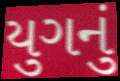
યુગનું